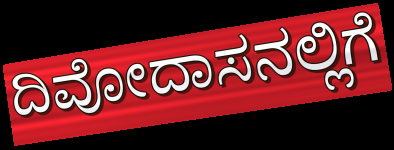
ದಿವೋದಾಸನಲ್ಲಿಗೆ